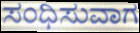
ಸಂಧಿಸುವಾಗ